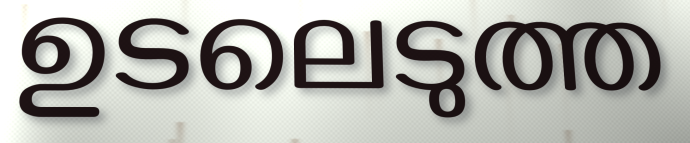
ഉടലെടുത്ത